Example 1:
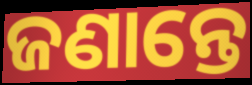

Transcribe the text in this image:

ଜଣାନ୍ତେ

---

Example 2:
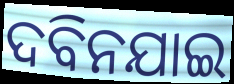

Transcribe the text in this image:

ଦବିନଯାଇ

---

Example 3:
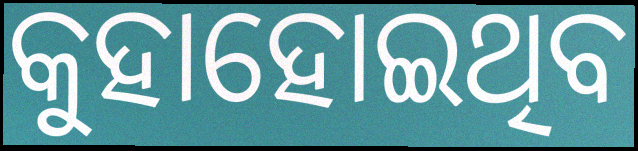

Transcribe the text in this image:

କୁହାହୋଇଥିବ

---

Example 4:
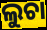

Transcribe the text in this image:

ଲୁଚା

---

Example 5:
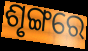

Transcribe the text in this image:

ଶୃଙ୍ଗରେ